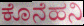
ಕೊನೆಹನಿ